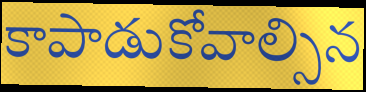
కాపాడుకోవాల్సిన